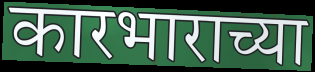
कारभाराच्या